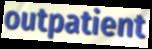
outpatient